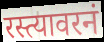
रस्त्यावरनं